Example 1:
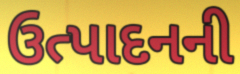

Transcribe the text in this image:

ઉત્પાદનની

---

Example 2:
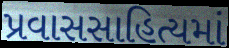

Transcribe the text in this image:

પ્રવાસસાહિત્યમાં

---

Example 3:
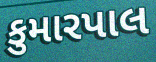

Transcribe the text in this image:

કુમારપાલ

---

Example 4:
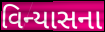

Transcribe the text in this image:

વિન્યાસના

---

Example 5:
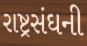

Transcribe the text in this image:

રાષ્ટ્રસંઘની